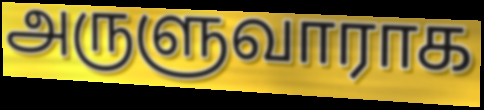
அருளுவாராக